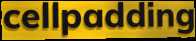
cellpadding